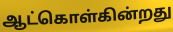
ஆட்கொள்கின்றது